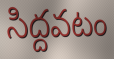
సిద్దవటం